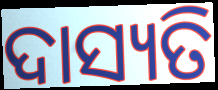
ଦାସ୍ୟତି